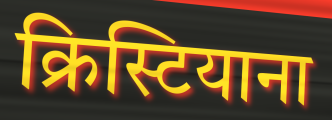
क्रिस्टियाना